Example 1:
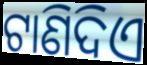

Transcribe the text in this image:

ଟାଣିଦିଏ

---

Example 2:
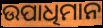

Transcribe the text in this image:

ଉପାଧିମାନ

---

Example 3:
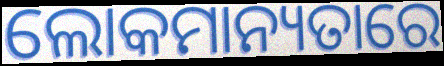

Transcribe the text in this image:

ଲୋକମାନ୍ୟତାରେ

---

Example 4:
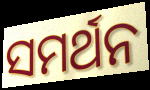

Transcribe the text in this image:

ସମର୍ଥନ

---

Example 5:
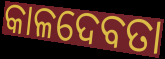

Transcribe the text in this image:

କାଳଦେବତା